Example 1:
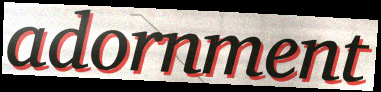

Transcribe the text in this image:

adornment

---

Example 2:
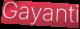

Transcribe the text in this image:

Gayanti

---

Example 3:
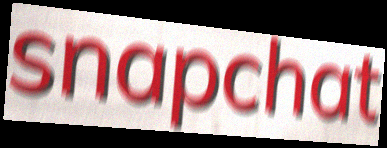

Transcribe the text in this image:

snapchat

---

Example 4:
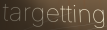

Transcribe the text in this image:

targetting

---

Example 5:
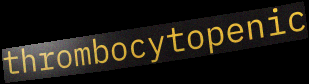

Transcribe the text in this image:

thrombocytopenic